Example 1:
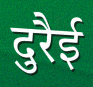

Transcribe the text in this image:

दुरैई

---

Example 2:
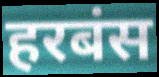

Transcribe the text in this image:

हरबंस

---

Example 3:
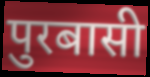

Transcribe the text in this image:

पुरबासी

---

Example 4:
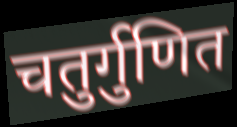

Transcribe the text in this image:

चतुर्गुणित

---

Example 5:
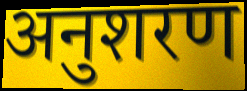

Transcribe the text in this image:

अनुशरण